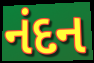
નંદન